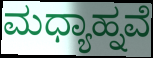
ಮಧ್ಯಾಹ್ನವೆ